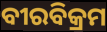
ବୀରବିକ୍ରମ